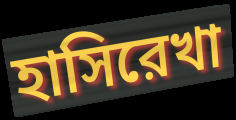
হাসিরেখা